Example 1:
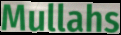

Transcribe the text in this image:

Mullahs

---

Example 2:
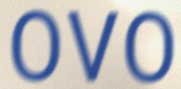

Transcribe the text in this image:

OVO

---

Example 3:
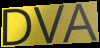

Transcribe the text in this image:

DVA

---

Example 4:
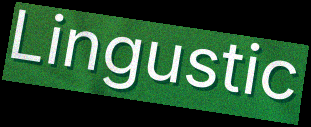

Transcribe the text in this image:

Lingustic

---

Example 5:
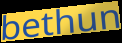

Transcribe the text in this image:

bethun